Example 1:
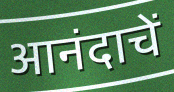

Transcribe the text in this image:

आनंदाचें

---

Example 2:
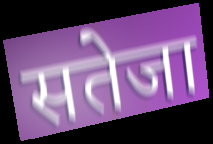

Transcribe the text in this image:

सतेजा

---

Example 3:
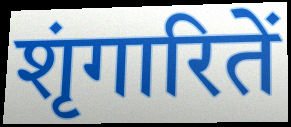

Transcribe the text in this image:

शृंगारितें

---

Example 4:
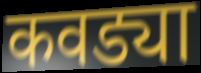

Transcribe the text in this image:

कवड्या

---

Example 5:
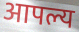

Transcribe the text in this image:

आपल्य